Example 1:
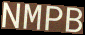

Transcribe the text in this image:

NMPB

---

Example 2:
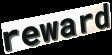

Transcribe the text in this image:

reward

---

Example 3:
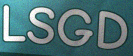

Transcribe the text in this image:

LSGD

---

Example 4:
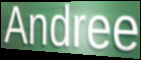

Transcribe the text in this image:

Andree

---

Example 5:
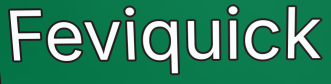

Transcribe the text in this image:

Feviquick